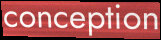
conception